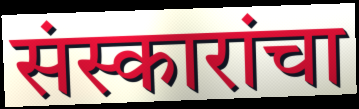
संस्कारांचा